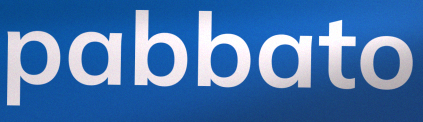
pabbato